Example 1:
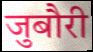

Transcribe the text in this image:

जुबौरी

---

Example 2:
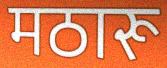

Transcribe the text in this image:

मठारू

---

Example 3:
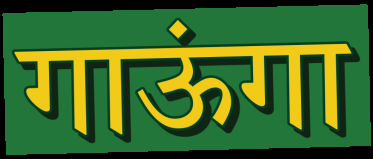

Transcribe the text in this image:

गाऊंगा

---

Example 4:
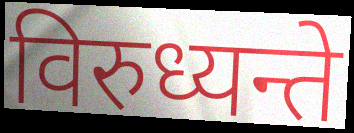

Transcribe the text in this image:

विरुध्यन्ते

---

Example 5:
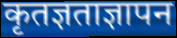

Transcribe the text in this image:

कृतज्ञताज्ञापन